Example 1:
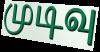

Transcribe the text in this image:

முடிவு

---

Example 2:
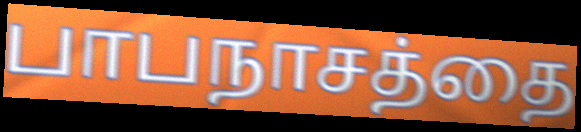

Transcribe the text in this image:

பாபநாசத்தை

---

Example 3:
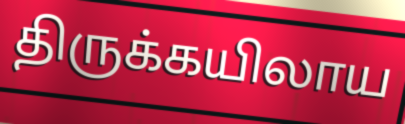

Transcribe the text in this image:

திருக்கயிலாய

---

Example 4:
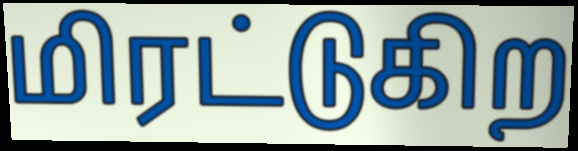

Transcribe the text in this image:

மிரட்டுகிற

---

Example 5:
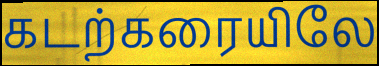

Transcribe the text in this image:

கடற்கரையிலே